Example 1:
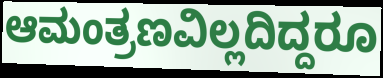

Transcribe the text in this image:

ಆಮಂತ್ರಣವಿಲ್ಲದಿದ್ದರೂ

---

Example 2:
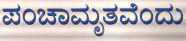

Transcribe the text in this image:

ಪಂಚಾಮೃತವೆಂದು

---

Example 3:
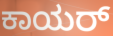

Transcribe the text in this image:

ಕಾಯರ್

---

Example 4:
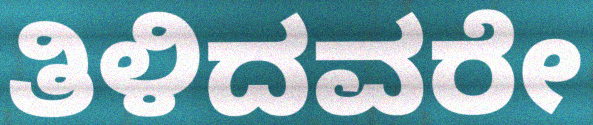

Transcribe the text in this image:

ತಿಳಿದವರೇ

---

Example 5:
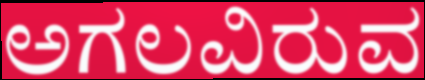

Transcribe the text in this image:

ಅಗಲವಿರುವ